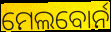
ମେଲବୋର୍ନ